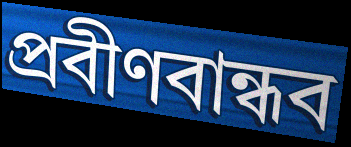
প্রবীণবান্ধব